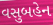
વસુબહેન